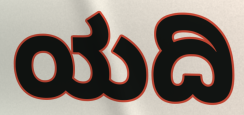
ಯದಿ